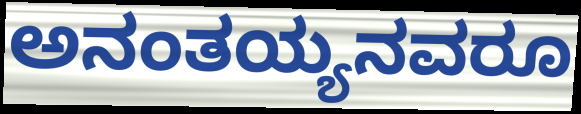
ಅನಂತಯ್ಯನವರೂ